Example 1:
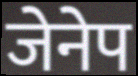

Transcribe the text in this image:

जेनेप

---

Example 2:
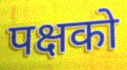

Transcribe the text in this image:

पक्षको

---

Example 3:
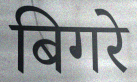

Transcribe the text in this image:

बिगरे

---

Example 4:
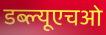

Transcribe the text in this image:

डब्ल्यूएचओ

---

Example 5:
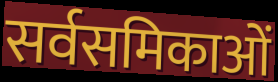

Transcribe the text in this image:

सर्वसमिकाओं